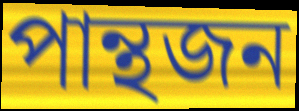
পান্থজন